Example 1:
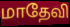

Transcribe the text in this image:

மாதேவி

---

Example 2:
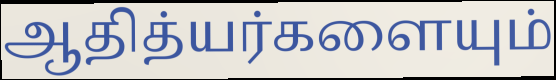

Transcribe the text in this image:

ஆதித்யர்களையும்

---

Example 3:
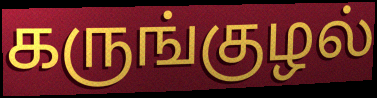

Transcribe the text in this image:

கருங்குழல்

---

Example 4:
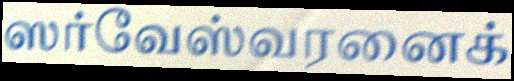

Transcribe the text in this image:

ஸர்வேஸ்வரனைக்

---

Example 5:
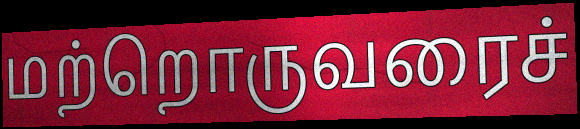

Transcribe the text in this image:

மற்றொருவரைச்